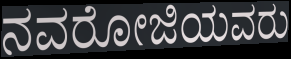
ನವರೋಜಿಯವರು